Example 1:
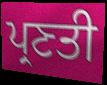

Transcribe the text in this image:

ਪ੍ਰਣਤੀ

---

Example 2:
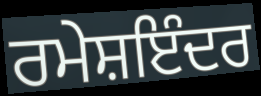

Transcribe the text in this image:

ਰਮੇਸ਼ਇੰਦਰ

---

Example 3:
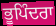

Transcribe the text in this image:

ਭੂਪਿੰਦਰਾ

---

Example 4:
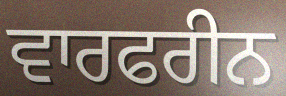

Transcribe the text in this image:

ਵਾਰਫਰੀਨ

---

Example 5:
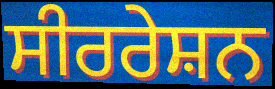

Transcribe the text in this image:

ਸੀਰਰੇਸ਼ਨ